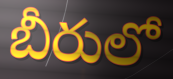
బీరులో